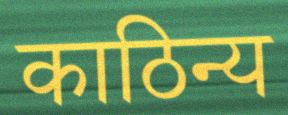
काठिन्य